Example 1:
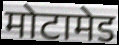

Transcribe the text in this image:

मोटामेड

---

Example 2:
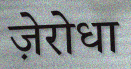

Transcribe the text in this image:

ज़ेरोधा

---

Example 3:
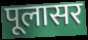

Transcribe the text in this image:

पूलासर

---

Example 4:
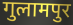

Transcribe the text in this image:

गुलामपुर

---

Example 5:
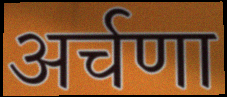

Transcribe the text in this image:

अर्चणा